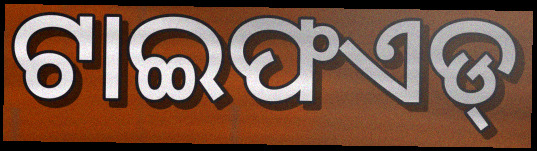
ଟାଇଫଏଡ୍